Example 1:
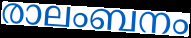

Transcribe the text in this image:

രാലംബനം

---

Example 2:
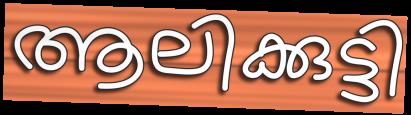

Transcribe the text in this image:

ആലിക്കുട്ടി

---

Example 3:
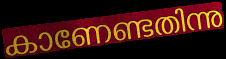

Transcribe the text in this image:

കാണേണ്ടതിന്നു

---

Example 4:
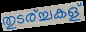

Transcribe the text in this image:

തുടര്ച്ചകള്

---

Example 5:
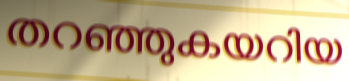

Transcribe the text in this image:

തറഞ്ഞുകയറിയ